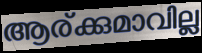
ആര്ക്കുമാവില്ല